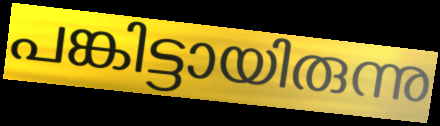
പങ്കിട്ടായിരുന്നു